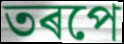
তৰপে